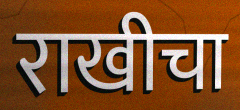
राखीचा